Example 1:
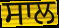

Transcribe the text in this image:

ਸਾਲ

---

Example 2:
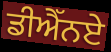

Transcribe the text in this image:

ਡੀਐੱਨਏ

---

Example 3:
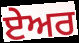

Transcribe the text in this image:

ਏਅਰ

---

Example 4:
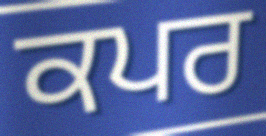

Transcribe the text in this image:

ਕਪਰ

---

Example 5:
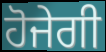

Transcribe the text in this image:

ਹੋਜੇਗੀ